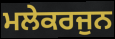
ਮਲੇਕਰਜੁਨ